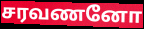
சரவணனோ